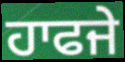
ਹਾਫਜੇ